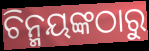
ଚିନ୍ମୟଙ୍କଠାରୁ